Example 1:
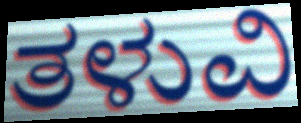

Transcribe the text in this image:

ತಳುವಿ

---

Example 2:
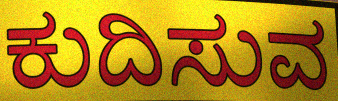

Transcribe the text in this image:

ಕುದಿಸುವ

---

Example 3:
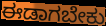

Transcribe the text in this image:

ಈಡಾಗಬೇಕು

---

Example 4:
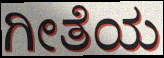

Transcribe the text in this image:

ಗೀತೆಯ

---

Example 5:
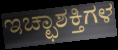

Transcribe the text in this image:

ಇಚ್ಛಾಶಕ್ತಿಗಳ